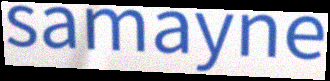
samayne